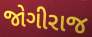
જોગીરાજ